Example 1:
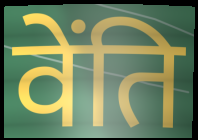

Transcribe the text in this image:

वेंति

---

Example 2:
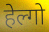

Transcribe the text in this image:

हेल्गो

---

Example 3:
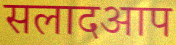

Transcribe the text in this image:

सलादआप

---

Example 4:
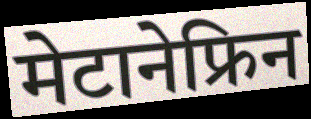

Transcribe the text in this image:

मेटानेफ्रिन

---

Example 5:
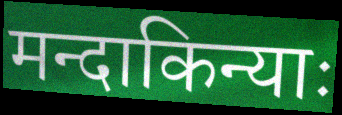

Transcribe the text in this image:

मन्दाकिन्याः